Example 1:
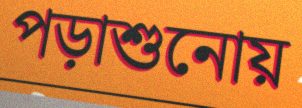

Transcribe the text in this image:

পড়াশুনোয়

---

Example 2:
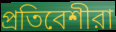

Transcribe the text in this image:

প্রতিবেশীরা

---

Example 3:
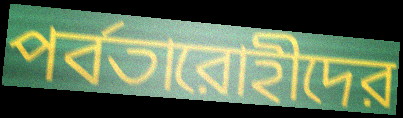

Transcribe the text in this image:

পর্বতারোহীদের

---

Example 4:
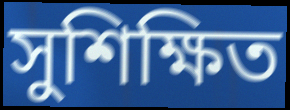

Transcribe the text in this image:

সুশিক্ষিত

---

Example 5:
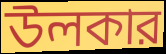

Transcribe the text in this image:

উলকার